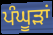
ਪੰਘੂੜਾਂ